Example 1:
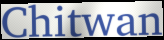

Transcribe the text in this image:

Chitwan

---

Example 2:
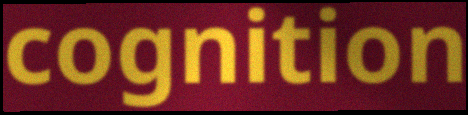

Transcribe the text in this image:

cognition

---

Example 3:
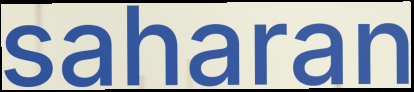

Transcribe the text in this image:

saharan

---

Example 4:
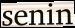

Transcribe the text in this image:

senin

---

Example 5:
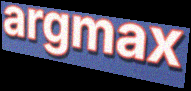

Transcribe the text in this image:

argmax